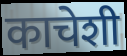
काचेशी